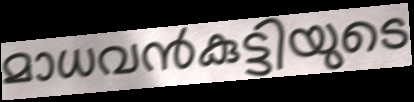
മാധവൻകുട്ടിയുടെ